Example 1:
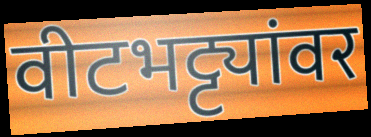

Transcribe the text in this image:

वीटभट्ट्यांवर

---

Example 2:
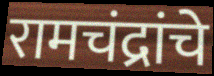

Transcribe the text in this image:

रामचंद्रांचे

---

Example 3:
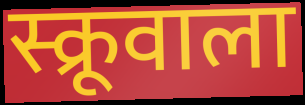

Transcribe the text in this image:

स्क्रूवाला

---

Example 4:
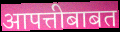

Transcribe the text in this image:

आपत्तीबाबत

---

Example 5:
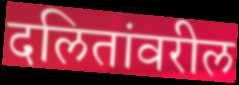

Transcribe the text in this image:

दलितांवरील